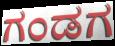
ಗಂಡಗ